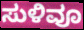
ಸುಳಿವೂ